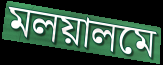
মলয়ালমে